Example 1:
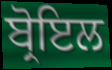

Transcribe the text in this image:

ਬ੍ਰੋਇਲ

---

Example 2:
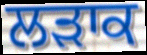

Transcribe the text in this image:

ਲੜਾਕ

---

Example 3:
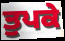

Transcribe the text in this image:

ਤੁਪਕੇ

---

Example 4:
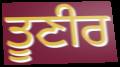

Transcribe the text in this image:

ਤੂਣੀਰ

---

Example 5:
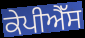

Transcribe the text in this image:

ਕੇਪੀਐੱਸ